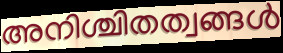
അനിശ്ചിതത്വങ്ങൾ